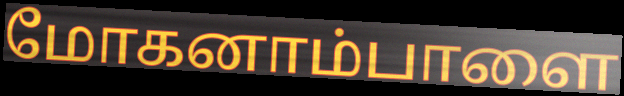
மோகனாம்பாளை